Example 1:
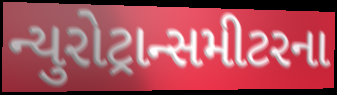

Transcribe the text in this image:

ન્યુરોટ્રાન્સમીટરના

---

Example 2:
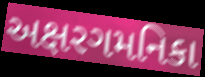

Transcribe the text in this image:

અક્ષરગમનિકા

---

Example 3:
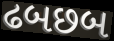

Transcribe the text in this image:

ઢબછબ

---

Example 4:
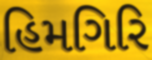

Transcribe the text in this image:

હિમગિરિ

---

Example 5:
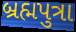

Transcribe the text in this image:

બ્રહ્મપુત્રા